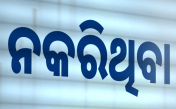
ନକରିଥିବା